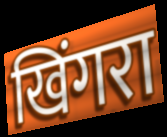
खिंगरा